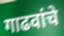
गाढवांचे